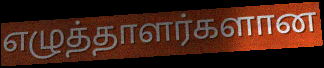
எழுத்தாளர்களான